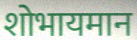
शोभायमान